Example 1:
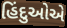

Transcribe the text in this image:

હિંદુઓએ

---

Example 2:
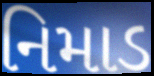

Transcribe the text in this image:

નિમાડ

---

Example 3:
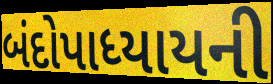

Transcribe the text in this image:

બંદોપાધ્યાયની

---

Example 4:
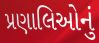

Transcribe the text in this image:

પ્રણાલિઓનું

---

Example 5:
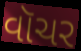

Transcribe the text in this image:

વૉચર